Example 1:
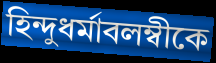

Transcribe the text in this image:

হিন্দুধর্মাবলম্বীকে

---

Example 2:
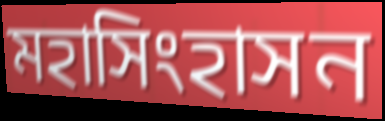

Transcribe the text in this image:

মহাসিংহাসন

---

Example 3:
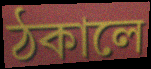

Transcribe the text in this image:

ঠকালে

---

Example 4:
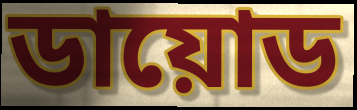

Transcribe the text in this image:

ডায়োড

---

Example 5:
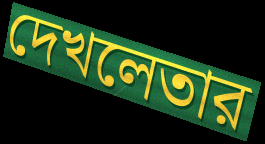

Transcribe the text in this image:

দেখলেতার